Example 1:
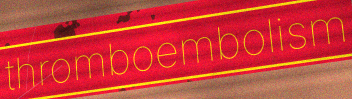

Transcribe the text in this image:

thromboembolism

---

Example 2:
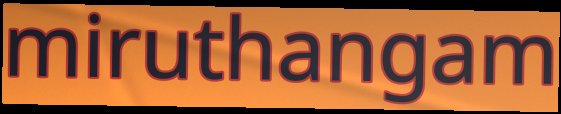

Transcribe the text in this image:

miruthangam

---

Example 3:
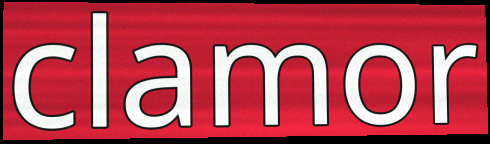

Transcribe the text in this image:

clamor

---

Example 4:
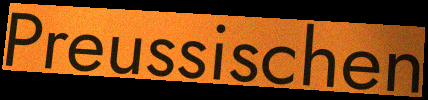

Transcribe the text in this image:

Preussischen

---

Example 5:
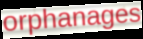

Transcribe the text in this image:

orphanages